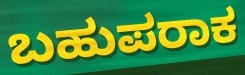
ಬಹುಪರಾಕ